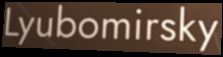
Lyubomirsky